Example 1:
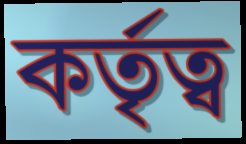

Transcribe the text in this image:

কর্তৃত্ব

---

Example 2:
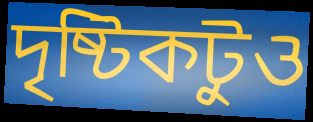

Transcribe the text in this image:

দৃষ্টিকটুও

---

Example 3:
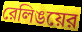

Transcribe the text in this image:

রেলিঙয়ের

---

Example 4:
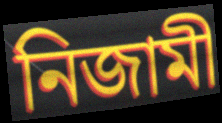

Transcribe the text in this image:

নিজামী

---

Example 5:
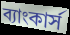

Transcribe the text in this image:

ব্যাংকার্স